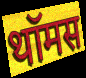
थॉमस